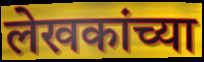
लेखकांच्या